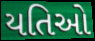
યતિઓ